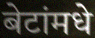
बेटांमधे